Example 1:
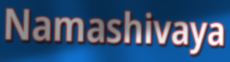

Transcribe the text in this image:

Namashivaya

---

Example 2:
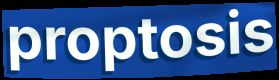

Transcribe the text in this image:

proptosis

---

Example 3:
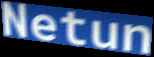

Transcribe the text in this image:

Netun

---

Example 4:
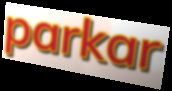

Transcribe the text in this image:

parkar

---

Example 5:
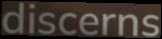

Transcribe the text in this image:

discerns